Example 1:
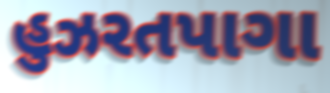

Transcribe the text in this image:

હુઝરતપાગા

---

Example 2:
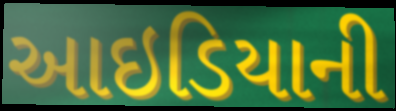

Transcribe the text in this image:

આઇડિયાની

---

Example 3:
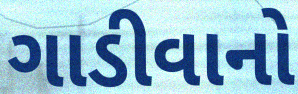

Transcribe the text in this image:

ગાડીવાનો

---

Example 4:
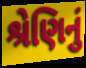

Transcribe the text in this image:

શ્રેણિનું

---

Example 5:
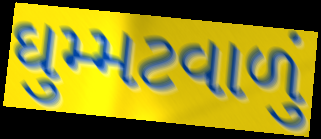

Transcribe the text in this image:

ઘુમ્મટવાળું